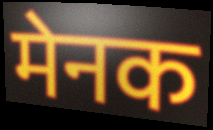
मेनक